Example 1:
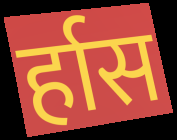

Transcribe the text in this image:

र्हास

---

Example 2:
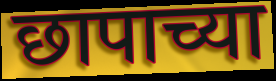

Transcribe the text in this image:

छापाच्या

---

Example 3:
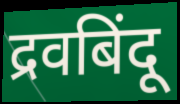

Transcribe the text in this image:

द्रवबिंदू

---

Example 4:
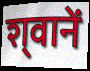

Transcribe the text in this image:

श्वानें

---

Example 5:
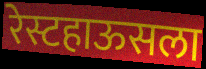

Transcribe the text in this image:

रेस्टहाऊसला